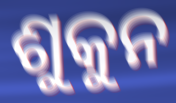
ଶୁକୁନ